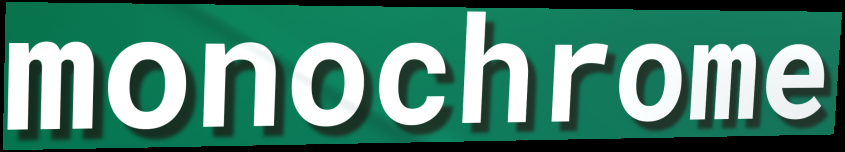
monochrome